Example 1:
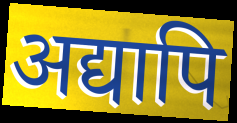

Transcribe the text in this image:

अद्यापि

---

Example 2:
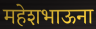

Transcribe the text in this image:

महेशभाऊना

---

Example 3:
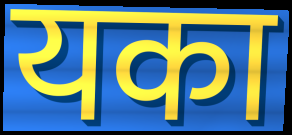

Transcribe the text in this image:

यका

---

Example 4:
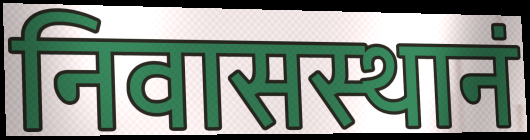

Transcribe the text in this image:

निवासस्थानं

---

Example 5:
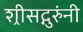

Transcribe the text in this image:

श्रीसद्गुरुंनी